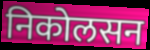
निकोलसन